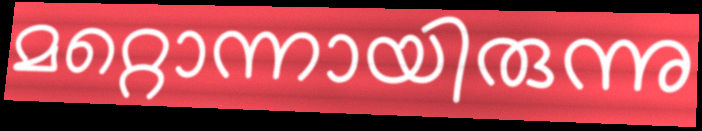
മറ്റൊന്നായിരുന്നു